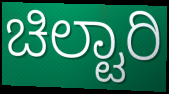
ಚಿಲ್ಟಾರಿ